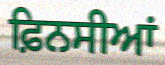
ਫ਼ਿਨਸੀਆਂ